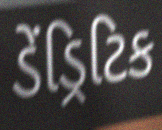
ડેંડ્રિટિક